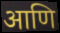
आणि